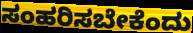
ಸಂಹರಿಸಬೇಕೆಂದು